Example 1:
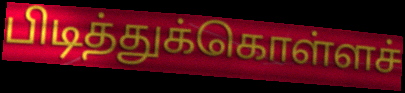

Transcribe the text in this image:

பிடித்துக்கொள்ளச்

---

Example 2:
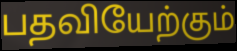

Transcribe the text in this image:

பதவியேற்கும்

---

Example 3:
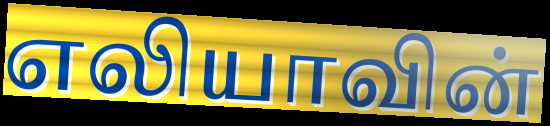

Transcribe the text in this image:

எலியாவின்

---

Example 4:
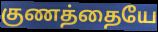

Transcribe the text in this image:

குணத்தையே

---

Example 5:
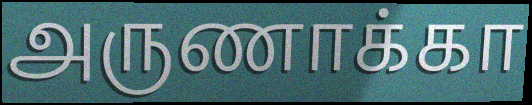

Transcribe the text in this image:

அருணாக்கா